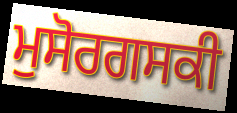
ਮੁਸੋਰਗਸਕੀ